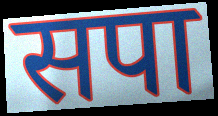
सपा